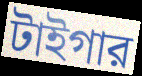
টাইগার